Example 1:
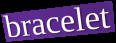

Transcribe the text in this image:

bracelet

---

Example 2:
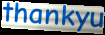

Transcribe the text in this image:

thankyu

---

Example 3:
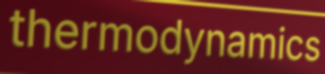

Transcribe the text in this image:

thermodynamics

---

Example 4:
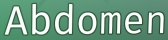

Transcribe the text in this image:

Abdomen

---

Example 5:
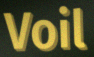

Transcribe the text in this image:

Voil